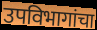
उपविभागांचा